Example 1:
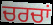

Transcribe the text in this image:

ਚਰਚਾਂ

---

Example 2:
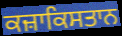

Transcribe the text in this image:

ਕਜ਼ਾਕਿਸਤਾਨ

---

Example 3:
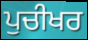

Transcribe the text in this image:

ਪੁਚੀਖਰ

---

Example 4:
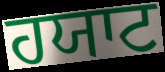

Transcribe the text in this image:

ਹਯਾਟ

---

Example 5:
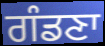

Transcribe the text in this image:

ਗੰਡਣਾ